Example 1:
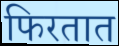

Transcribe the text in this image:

फिरतात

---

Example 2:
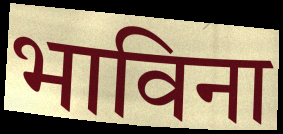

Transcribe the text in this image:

भाविना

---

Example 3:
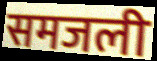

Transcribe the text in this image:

समजली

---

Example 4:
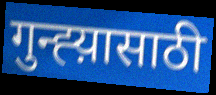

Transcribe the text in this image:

गुन्ह्य़ासाठी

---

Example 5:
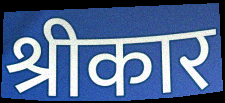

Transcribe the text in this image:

श्रीकार